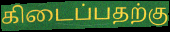
கிடைப்பதற்கு